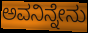
ಅವನಿನ್ನೇನು